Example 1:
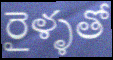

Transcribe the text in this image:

రైళ్ళతో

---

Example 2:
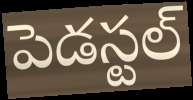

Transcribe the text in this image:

పెడస్టల్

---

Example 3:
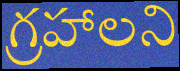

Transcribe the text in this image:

గ్రహాలని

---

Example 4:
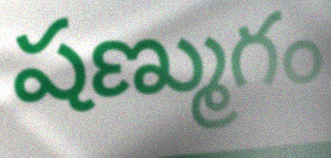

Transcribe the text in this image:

షణ్ముగం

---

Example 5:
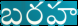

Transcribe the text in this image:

బరహ